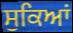
ਸੁਕਿਆਂ